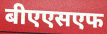
बीएएसएफ